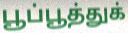
பூப்பூத்துக்